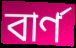
বাৰ্ণ